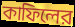
কাফিলের